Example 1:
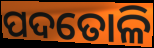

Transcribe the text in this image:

ପଦତୋଳି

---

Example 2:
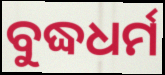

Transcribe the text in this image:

ବୁଦ୍ଧଧର୍ମ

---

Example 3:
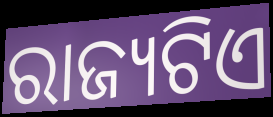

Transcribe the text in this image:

ରାଜ୍ୟଟିଏ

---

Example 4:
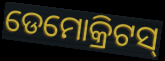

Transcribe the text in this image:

ଡେମୋକ୍ରିଟସ୍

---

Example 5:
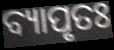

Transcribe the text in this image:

ବ୍ୟାପୃତଃ